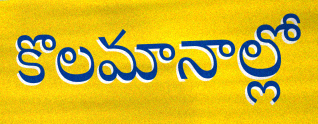
కొలమానాల్లో